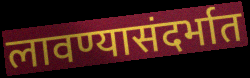
लावण्यासंदर्भात